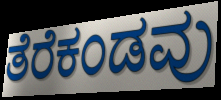
ತೆರೆಕಂಡವು